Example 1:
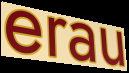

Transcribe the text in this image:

erau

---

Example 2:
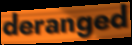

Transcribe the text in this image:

deranged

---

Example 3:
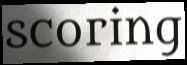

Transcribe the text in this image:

scoring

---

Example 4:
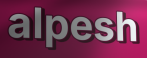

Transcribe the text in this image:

alpesh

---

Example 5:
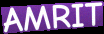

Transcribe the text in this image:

AMRIT